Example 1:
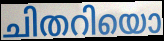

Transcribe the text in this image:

ചിതറിയൊ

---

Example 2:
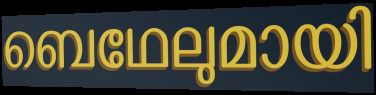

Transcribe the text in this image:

ബെഥേലുമായി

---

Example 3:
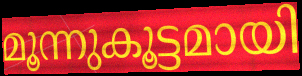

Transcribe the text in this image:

മൂന്നുകൂട്ടമായി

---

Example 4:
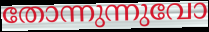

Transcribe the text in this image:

തോന്നുന്നുവോ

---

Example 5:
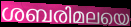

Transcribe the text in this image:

ശബരിമലയെ